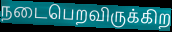
நடைபெறவிருக்கிற